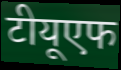
टीयूएफ